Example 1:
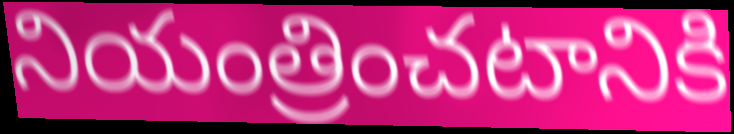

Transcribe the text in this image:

నియంత్రించటానికి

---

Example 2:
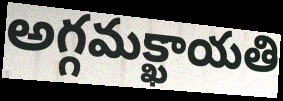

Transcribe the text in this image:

అగ్గమక్ఖాయతి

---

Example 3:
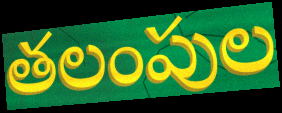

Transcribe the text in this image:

తలంపుల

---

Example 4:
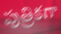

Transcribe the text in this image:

పుత్రికగా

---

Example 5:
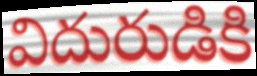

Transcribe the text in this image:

విదురుడికి